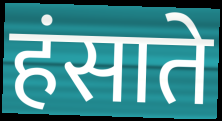
हंसाते